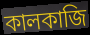
কালকাজি